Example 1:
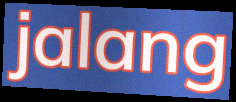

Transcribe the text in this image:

jalang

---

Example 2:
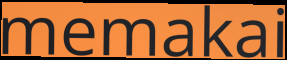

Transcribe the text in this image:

memakai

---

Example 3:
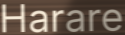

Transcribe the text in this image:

Harare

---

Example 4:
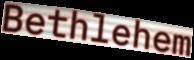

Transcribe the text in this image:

Bethlehem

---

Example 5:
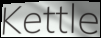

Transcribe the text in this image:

Kettle